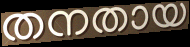
തനതായ